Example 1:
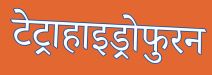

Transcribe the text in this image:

टेट्राहाइड्रोफुरन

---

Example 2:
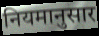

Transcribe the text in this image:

नियमानुसार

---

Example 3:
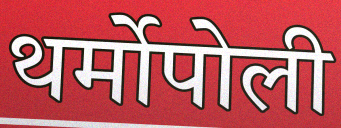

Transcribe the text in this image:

थर्मोपोली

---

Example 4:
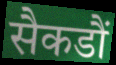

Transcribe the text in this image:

सैकडौं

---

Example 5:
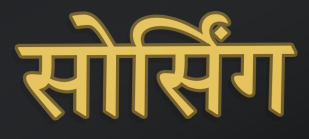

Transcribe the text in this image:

सोर्सिंग